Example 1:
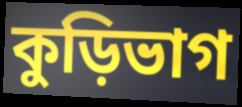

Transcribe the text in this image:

কুড়িভাগ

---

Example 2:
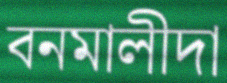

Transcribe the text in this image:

বনমালীদা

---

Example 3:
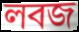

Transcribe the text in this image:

লবজ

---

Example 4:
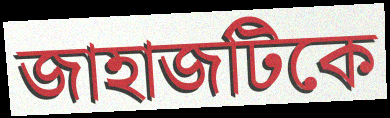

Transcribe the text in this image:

জাহাজটিকে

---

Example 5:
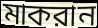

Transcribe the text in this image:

মাকরান